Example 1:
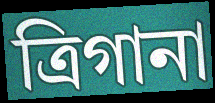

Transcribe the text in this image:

ত্রিগানা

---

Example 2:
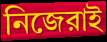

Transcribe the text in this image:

নিজেরাই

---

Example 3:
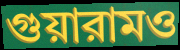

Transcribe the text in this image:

গুয়ারামও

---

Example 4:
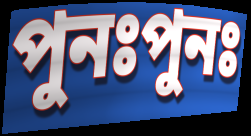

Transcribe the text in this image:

পুনঃপুনঃ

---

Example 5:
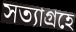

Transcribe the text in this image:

সত্যাগ্রহে